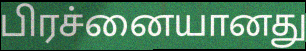
பிரச்னையானது